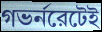
গভর্নরেটেই